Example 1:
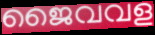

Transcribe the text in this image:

ജൈവവള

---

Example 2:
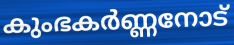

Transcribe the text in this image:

കുംഭകർണ്ണനോട്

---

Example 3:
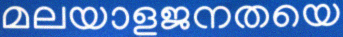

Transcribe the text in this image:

മലയാളജനതയെ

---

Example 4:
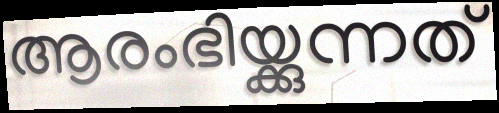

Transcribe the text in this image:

ആരംഭിയ്ക്കുന്നത്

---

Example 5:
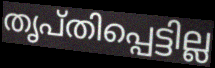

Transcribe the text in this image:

തൃപ്തിപ്പെട്ടില്ല